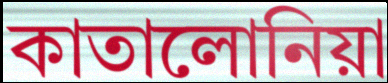
কাতালোনিয়া